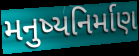
મનુષ્યનિર્માણ